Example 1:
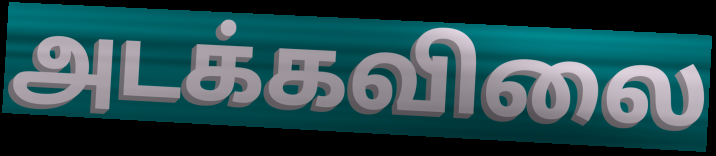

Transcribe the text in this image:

அடக்கவிலை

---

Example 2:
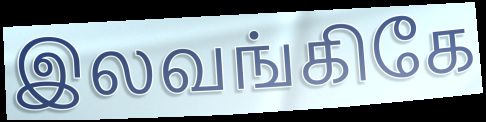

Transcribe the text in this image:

இலவங்கிகே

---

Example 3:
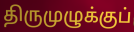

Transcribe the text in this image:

திருமுழுக்குப்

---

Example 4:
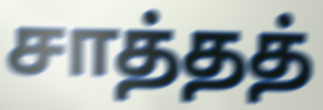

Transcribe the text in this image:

சாத்தத்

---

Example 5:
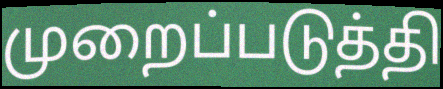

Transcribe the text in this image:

முறைப்படுத்தி